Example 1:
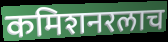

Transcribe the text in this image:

कमिशनरलाच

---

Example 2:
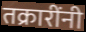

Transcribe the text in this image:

तक्रारींनी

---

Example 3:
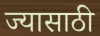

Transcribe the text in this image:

ज्यासाठी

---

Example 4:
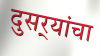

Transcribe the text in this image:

दुसर्यांचा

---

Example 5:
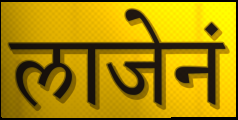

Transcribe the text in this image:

लाजेनं